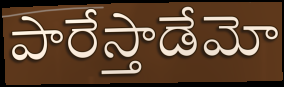
పారేస్తాడేమో